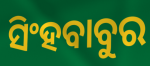
ସିଂହବାବୁର